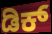
ಡಿಕ್